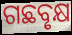
ଗଛବୃକ୍ଷ